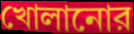
খোলানোর